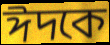
ঈদকে